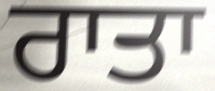
ਰਾਤਾ